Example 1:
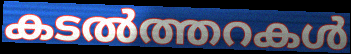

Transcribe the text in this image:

കടൽത്തറകൾ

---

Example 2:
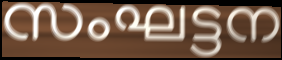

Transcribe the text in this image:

സംഘട്ടന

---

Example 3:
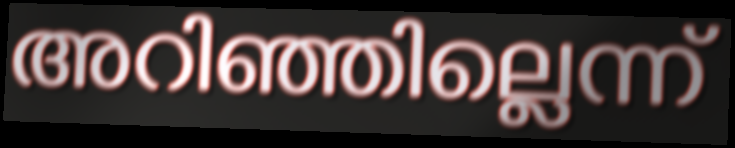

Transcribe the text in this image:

അറിഞ്ഞില്ലെന്ന്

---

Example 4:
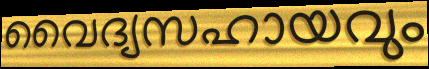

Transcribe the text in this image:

വൈദ്യസഹായവും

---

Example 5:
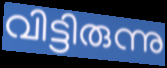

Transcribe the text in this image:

വിട്ടിരുന്നു